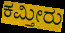
ಕಮ್ತೀರು